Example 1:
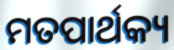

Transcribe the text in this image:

ମତପାର୍ଥକ୍ୟ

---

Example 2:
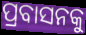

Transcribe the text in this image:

ପ୍ରବାସନକୁ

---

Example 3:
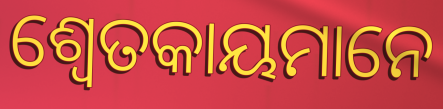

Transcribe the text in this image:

ଶ୍ୱେତକାୟମାନେ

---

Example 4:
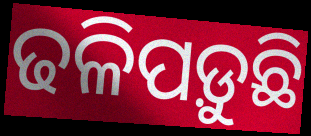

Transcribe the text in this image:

ଢଳିପଡ଼ୁଛି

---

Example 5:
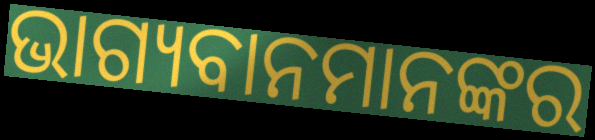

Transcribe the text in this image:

ଭାଗ୍ୟବାନମାନଙ୍କର